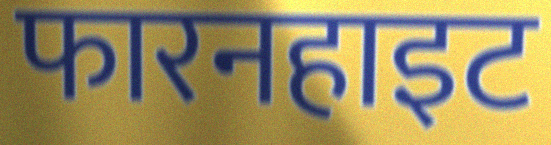
फारनहाइट